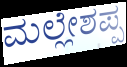
ಮಲ್ಲೇಶಪ್ಪ